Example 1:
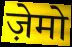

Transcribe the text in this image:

ज़ेमो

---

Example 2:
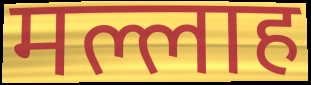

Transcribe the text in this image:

मल्लाह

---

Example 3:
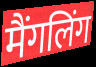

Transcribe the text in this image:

मैंगलिंग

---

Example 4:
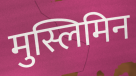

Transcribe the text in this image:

मुस्लिमिन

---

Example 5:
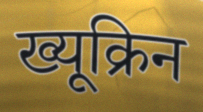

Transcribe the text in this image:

ख्यूक्रिन